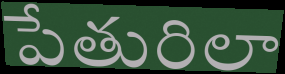
పేతురిలా